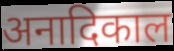
अनादिकाल